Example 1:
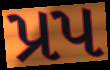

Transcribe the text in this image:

પ્રપ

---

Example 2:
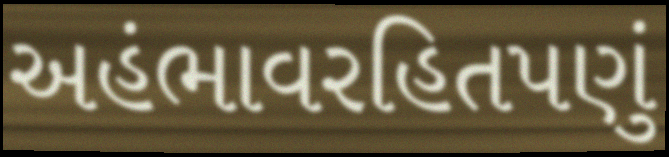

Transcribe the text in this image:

અહંભાવરહિતપણું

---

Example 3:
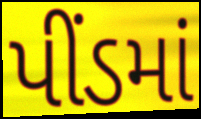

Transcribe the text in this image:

પીંડમાં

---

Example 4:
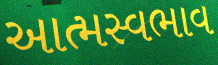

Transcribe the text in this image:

આત્મસ્વભાવ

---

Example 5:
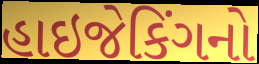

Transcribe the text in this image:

હાઇજેકિંગનો